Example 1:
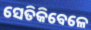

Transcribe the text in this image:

ସେତିକିବେଳେ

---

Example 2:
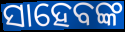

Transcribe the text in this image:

ସାହେବଙ୍କ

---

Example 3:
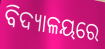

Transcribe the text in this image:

ବିଦ୍ଯାଳୟରେ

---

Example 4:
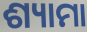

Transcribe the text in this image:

ଶ୍ୟାମା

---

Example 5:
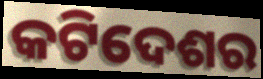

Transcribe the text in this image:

କଟିଦେଶର